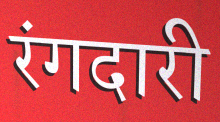
रंगदारी